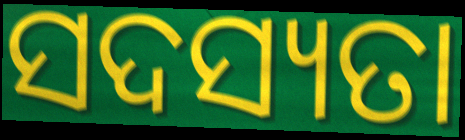
ସଦସ୍ଯତା